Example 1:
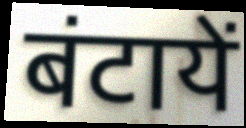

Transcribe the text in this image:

बंटायें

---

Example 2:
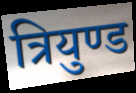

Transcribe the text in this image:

त्रियुण्ड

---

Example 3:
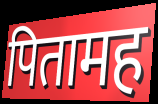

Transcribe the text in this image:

पितामह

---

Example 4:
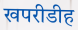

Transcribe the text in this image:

खपरीडीह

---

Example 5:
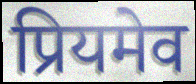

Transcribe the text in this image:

प्रियमेव